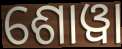
ଶୋୱା